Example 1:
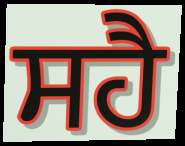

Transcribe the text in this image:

ਸਹੈ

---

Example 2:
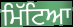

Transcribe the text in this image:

ਮਿੱਟਿਆ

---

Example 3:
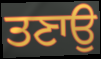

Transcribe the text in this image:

ਤਣਾਉ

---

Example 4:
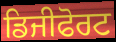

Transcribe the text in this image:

ਡਿਜੀਫੋਰਟ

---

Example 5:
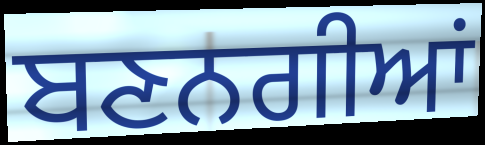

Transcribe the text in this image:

ਬਣਨਗੀਆਂ